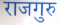
राजगुरु